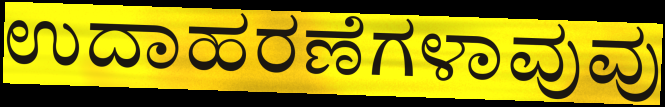
ಉದಾಹರಣೆಗಳಾವುವು